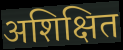
अशिक्षित